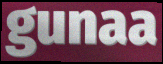
gunaa